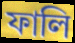
ফালি